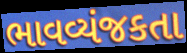
ભાવવ્યંજકતા